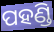
ପହଣ୍ଡି